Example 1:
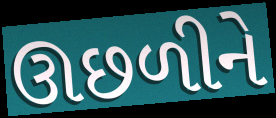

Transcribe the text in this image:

ઊછળીને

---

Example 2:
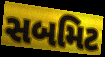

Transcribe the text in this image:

સબમિટ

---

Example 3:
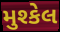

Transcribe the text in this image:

મુશ્કેલ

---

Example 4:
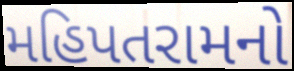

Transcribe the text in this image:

મહિપતરામનો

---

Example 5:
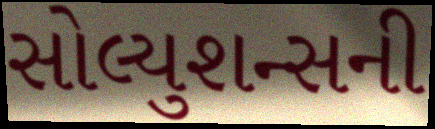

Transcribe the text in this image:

સોલ્યુશન્સની